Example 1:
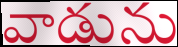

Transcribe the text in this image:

వాడును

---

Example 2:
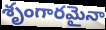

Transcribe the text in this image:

శృంగారమైనా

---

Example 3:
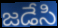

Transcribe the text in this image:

జడేసి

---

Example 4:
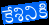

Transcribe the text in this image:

కేశినికి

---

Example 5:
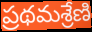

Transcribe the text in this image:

ప్రథమశ్రేణి